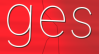
ges